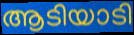
ആടിയാടി